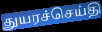
துயரச்செய்தி